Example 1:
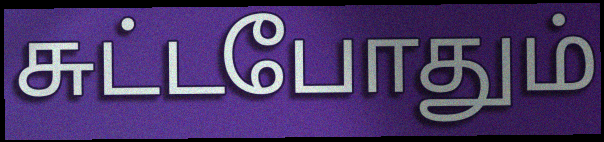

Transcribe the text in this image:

சுட்டபோதும்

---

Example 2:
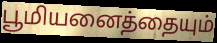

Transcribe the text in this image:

பூமியனைத்தையும்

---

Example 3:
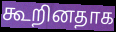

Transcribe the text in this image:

கூறினதாக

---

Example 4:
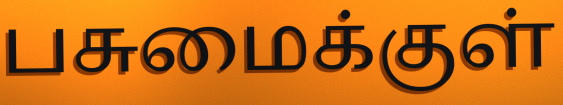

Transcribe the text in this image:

பசுமைக்குள்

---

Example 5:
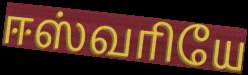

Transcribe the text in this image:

ஈஸ்வரியே